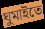
ঘুমাইতে